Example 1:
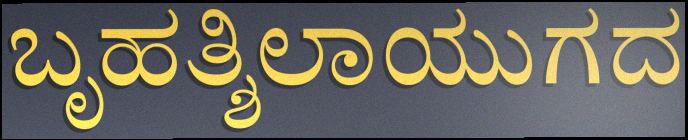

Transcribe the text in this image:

ಬೃಹತ್ಶಿಲಾಯುಗದ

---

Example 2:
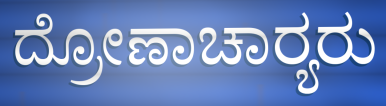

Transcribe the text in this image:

ದ್ರೋಣಾಚಾರ‍್ಯರು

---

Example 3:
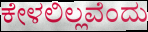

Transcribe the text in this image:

ಕೇಳಲಿಲ್ಲವೆಂದು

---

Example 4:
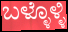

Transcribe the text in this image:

ಬಳ್ಳೊಳ್ಳಿ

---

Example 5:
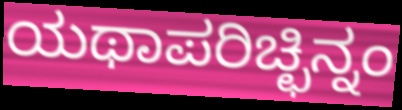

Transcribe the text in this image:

ಯಥಾಪರಿಚ್ಛಿನ್ನಂ